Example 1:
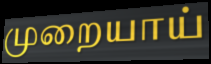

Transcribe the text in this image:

முறையாய்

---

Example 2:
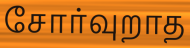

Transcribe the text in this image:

சோர்வுறாத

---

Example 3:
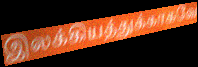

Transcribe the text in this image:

இலக்கியத்துக்காகவே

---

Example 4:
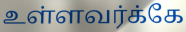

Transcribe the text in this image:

உள்ளவர்க்கே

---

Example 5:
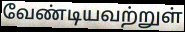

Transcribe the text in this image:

வேண்டியவற்றுள்